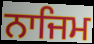
ਨਾਜਿਮ